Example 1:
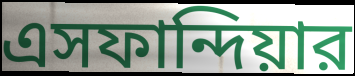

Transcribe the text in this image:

এসফান্দিয়ার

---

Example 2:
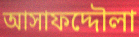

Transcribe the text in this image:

আসাফদ্দৌলা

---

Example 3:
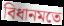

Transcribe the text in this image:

বিধানমতে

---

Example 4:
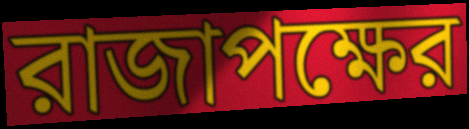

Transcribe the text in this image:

রাজাপক্ষের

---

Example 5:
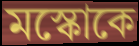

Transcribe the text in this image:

মস্কোকে